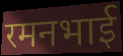
रमनभाई